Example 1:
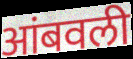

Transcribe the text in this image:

आंबवली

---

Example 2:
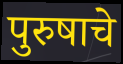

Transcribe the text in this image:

पुरुषाचे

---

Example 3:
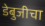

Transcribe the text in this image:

डेबुजीचा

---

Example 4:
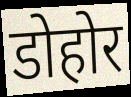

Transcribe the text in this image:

डोहोर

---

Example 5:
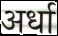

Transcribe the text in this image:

अर्धा